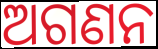
ଅଗଣନ